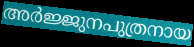
അർജ്ജുനപുത്രനായ